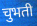
चुभती